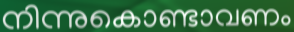
നിന്നുകൊണ്ടാവണം